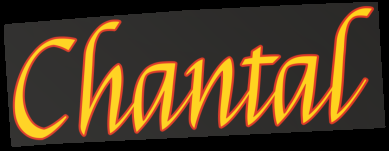
Chantal